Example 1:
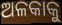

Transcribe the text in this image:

ଅଳକାକୁ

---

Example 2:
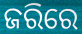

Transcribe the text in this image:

ଜରିରେ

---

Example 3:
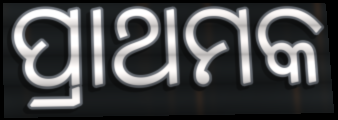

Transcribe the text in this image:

ପ୍ରାଥମକ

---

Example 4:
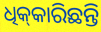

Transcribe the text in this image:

ଧିକ୍‌କାରିଛନ୍ତି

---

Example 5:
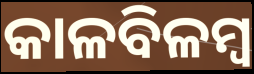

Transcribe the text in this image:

କାଳବିଳମ୍ବ